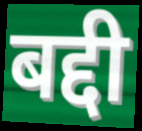
बद्दी